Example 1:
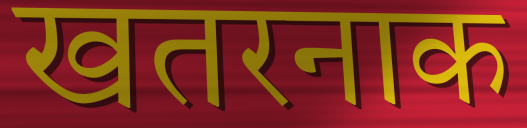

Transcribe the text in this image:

खतरनाक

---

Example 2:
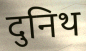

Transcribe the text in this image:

दुनिथ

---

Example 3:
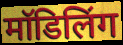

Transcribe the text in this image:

मॉडिलिंग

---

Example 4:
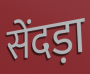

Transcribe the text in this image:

सेंदड़ा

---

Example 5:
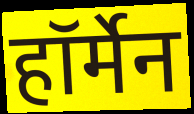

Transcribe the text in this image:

हॉर्मेन